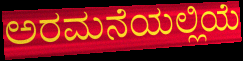
ಅರಮನೆಯಲ್ಲಿಯೆ